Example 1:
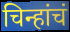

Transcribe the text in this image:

चिन्हांचं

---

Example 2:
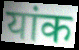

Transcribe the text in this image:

यांक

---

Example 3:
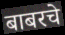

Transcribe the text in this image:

बाबरचे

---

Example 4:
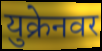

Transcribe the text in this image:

युक्रेनवर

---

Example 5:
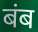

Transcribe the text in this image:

बंब